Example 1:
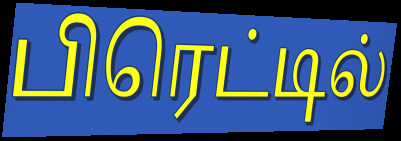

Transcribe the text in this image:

பிரெட்டில்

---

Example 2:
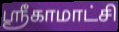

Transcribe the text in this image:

ஸ்ரீகாமாட்சி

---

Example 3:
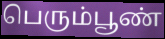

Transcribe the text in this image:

பெரும்பூண்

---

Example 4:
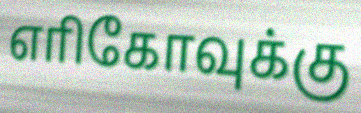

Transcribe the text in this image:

எரிகோவுக்கு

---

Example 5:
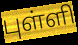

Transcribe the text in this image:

புள்ளி